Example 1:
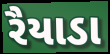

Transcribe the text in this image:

રૈયાડા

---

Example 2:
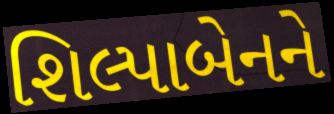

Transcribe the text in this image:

શિલ્પાબેનને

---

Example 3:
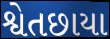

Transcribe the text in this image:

શ્વેતછાયા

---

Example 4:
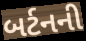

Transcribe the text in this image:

બર્ટનની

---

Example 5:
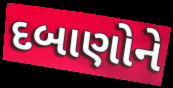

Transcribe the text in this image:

દબાણોને